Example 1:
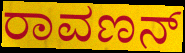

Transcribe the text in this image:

ರಾವಣನ್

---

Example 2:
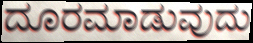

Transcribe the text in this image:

ದೂರಮಾಡುವುದು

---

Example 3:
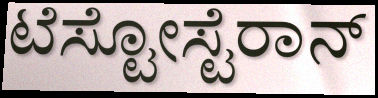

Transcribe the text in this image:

ಟೆಸ್ಟೋಸ್ಟೆರಾನ್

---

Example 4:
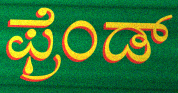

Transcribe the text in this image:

ಫ್ರೆಂಡ್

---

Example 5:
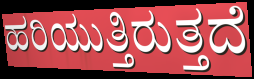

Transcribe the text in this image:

ಹರಿಯುತ್ತಿರುತ್ತದೆ